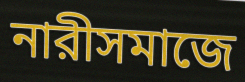
নারীসমাজে